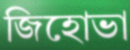
জিহোভা